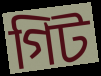
গিট